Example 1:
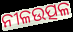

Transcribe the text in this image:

ନୀଳଉତ୍ପଳ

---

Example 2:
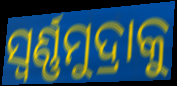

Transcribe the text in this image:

ସ୍ଵର୍ଣ୍ଣମୁଦ୍ରାକୁ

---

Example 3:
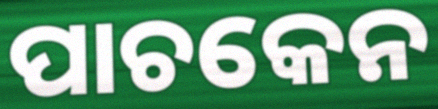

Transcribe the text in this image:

ପାଚକେନ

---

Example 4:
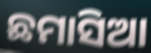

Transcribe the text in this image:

ଛମାସିଆ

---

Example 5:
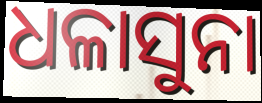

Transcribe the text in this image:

ଧଳାସୁନା